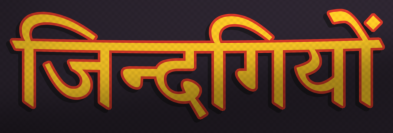
जिन्दगियों